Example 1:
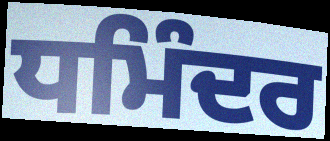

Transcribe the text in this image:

ਧਮਿੰਦਰ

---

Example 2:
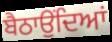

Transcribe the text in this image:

ਬੈਠਾਉਂਦਿਆਂ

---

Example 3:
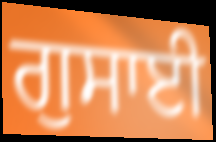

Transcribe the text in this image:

ਗੁਸਾਈ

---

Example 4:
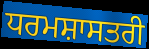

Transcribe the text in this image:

ਧਰਮਸ਼ਾਸਤਰੀ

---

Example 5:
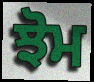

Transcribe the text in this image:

ਝੋਮ